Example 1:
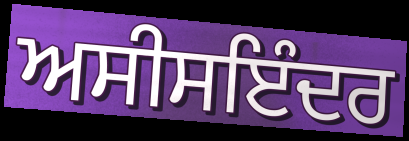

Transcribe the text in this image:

ਅਸੀਸਇੰਦਰ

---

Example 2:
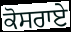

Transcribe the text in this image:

ਕੋਸਰਾਏ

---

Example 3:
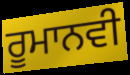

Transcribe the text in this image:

ਰੂਮਾਨਵੀ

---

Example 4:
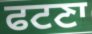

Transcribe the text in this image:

ਫਟਣਾ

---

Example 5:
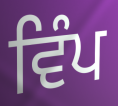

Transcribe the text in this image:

ਵਿੰਪ